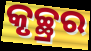
କୃଚ୍ଛ୍ରର